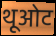
थूओट